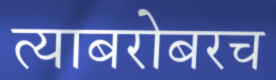
त्याबरोबरच